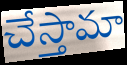
చేస్తామా